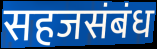
सहजसंबंध